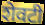
शेवटी